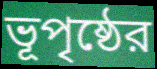
ভূপৃষ্ঠের